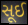
સૂઈ